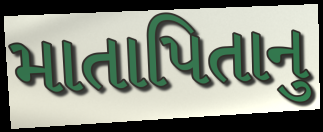
માતાપિતાનુ